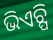
ଭିଏଚ୍ପି